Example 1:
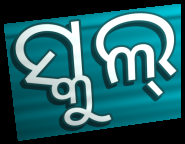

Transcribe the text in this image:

ସ୍କୁଲ୍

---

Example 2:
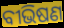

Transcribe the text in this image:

ବୀଭିଷଣ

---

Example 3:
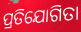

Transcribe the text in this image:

ପ୍ରତିଯୋଗିତା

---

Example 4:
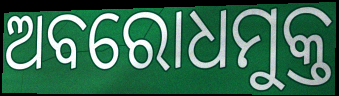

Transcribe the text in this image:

ଅବରୋଧମୁକ୍ତ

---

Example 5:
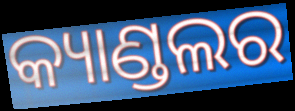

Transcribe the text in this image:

କ୍ୟାଣ୍ଡଲର